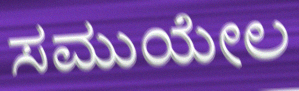
ಸಮುಯೇಲ